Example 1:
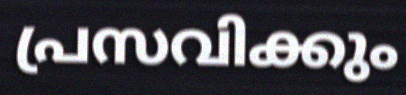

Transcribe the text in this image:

പ്രസവിക്കും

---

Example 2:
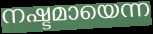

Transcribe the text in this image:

നഷ്ടമായെന്ന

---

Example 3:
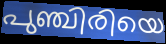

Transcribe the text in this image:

പുഞ്ചിരിയെ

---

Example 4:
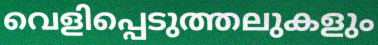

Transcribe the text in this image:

വെളിപ്പെടുത്തലുകളും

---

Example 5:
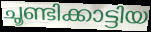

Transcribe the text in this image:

ചൂണ്ടിക്കാട്ടിയ